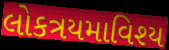
લોકત્રયમાવિશ્ય